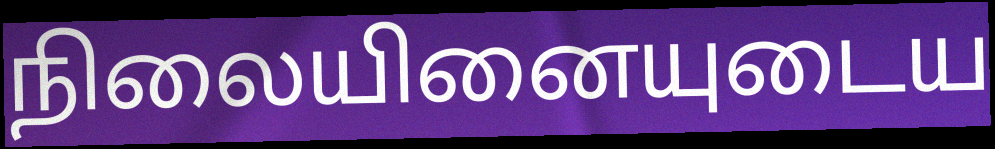
நிலையினையுடைய